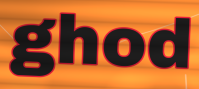
ghod